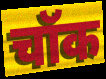
चॉक